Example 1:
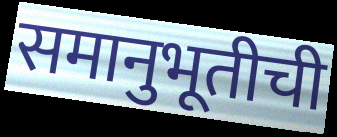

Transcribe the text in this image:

समानुभूतीची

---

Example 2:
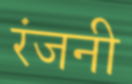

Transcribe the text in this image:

रंजनी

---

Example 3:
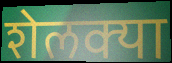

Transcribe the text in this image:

शेलक्या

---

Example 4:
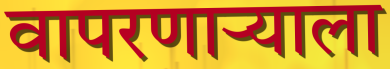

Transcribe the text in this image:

वापरणार्‍याला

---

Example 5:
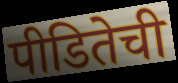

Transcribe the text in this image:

पीडितेची